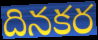
దినకర